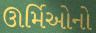
ઊર્મિઓનો